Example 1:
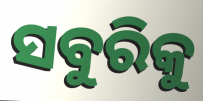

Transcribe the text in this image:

ସବୁରିକୁ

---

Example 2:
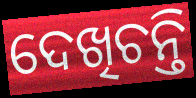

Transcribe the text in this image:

ଦେଖିଚନ୍ତି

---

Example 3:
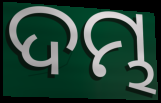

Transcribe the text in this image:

ଦମ୍ଭ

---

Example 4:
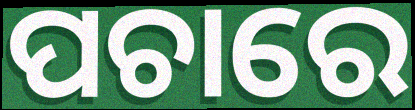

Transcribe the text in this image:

ପଚାରେ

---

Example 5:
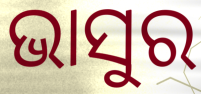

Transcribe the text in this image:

ଭାସୁର